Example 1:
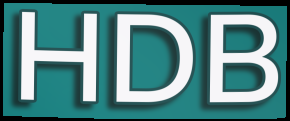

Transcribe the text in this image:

HDB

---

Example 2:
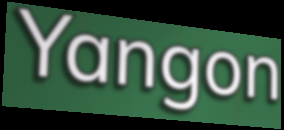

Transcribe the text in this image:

Yangon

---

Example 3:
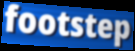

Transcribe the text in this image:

footstep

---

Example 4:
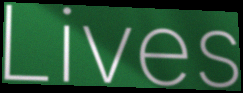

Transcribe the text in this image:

Lives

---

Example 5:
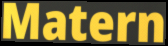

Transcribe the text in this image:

Matern